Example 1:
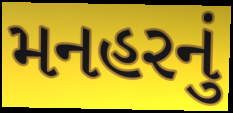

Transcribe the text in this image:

મનહરનું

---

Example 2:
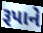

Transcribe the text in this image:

રૂપાને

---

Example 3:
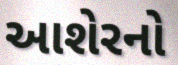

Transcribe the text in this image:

આશેરનો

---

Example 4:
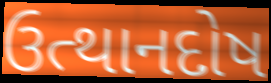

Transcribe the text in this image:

ઉત્થાનદોષ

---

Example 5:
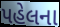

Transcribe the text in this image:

પહેલના